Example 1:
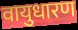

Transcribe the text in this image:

वायुधारण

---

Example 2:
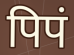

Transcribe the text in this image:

पिपं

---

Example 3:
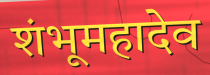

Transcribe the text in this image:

शंभूमहादेव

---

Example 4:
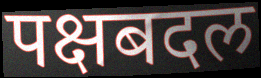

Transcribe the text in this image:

पक्षबदल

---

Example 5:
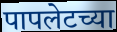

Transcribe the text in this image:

पापलेटच्या